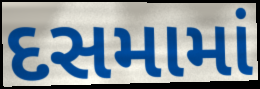
દસમામાં